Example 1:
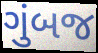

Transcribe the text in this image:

ગુંબજ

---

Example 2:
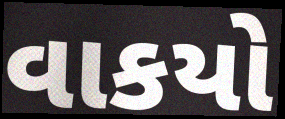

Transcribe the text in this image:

વાકયો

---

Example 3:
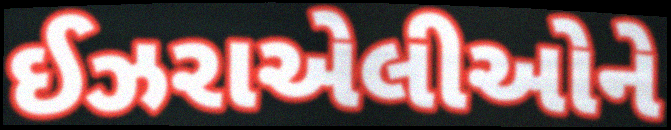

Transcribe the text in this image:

ઈઝરાએલીઓને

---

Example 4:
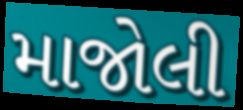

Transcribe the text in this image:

માજોલી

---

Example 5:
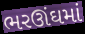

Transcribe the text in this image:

ભરઊંઘમાં